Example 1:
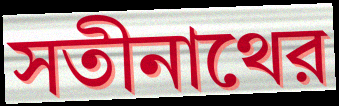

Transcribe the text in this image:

সতীনাথের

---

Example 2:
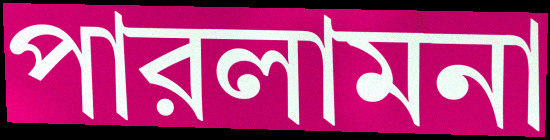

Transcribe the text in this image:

পারলামনা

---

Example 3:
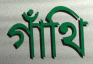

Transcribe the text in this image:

গাঁথি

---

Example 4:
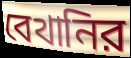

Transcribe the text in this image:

বেথানির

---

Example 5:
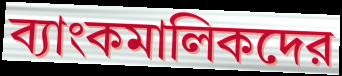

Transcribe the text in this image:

ব্যাংকমালিকদের